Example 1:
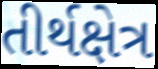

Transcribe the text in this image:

તીર્થક્ષેત્ર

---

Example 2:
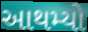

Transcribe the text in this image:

આથમ્યો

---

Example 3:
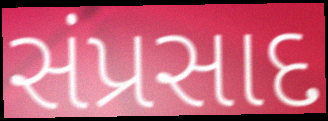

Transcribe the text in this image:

સંપ્રસાદ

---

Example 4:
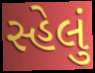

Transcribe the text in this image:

સ્હેલું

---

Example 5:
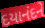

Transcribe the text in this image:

દયાનંદને